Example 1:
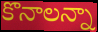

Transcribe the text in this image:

కొనాలన్నా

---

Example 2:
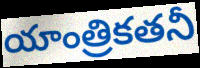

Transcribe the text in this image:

యాంత్రికతనీ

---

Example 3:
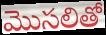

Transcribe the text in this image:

మొసలితో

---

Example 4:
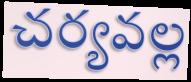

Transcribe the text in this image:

చర్యవల్ల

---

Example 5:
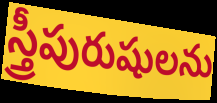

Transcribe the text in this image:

స్త్రీపురుషులను